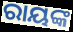
ରାୟଙ୍କ